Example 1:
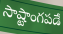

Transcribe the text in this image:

సాష్టాంగపడే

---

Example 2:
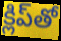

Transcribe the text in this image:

క్లిప్‌తో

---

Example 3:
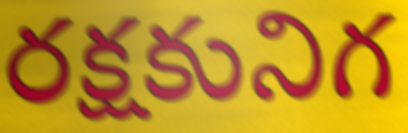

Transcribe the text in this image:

రక్షకునిగ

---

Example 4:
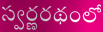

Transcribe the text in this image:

స్వర్ణరథంలో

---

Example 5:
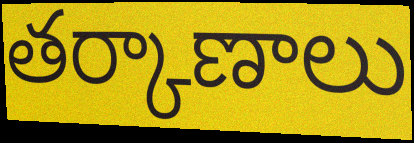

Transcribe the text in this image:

తర్కాణాలు